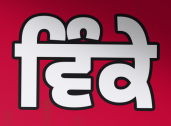
ਵਿੰਕੇ